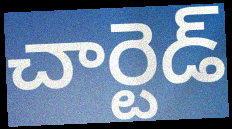
చార్టెడ్